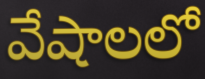
వేషాలలో